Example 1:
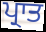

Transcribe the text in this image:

ਪ੍ਰਾਤ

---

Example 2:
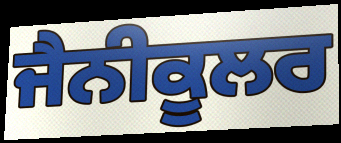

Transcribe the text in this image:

ਜੈਨੀਕੂਲਰ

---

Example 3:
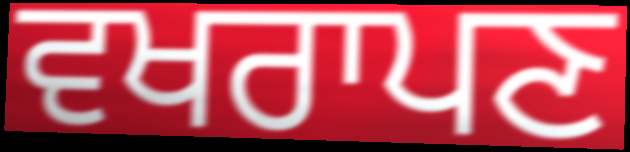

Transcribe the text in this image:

ਵਖਰਾਪਣ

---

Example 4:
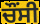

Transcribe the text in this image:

ਚੌਂਸੀ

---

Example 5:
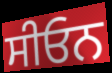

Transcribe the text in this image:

ਸੀਓਨ